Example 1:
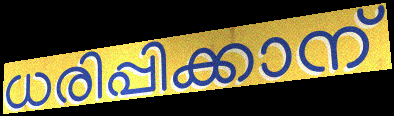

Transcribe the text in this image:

ധരിപ്പിക്കാന്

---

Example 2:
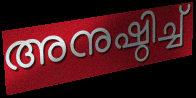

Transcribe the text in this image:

അനുഷ്ഠിച്ച്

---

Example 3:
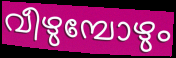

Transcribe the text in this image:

വീഴുമ്പോഴും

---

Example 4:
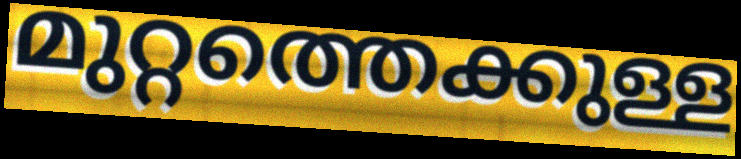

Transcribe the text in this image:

മുറ്റത്തെക്കുള്ള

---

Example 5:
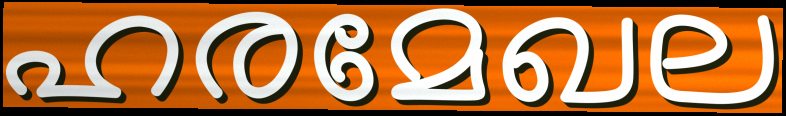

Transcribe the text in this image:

ഹരമേഖല